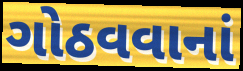
ગોઠવવાનાં